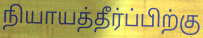
நியாயத்தீர்ப்பிற்கு